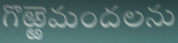
గొఱ్ఱెమందలను